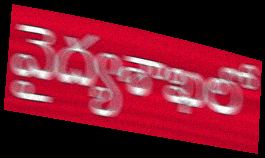
వైద్యశాఖలో